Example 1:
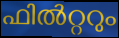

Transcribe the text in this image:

ഫിൽറ്ററും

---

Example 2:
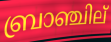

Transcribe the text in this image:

ബ്രാഞ്ചില്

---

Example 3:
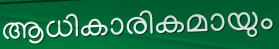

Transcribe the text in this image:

ആധികാരികമായും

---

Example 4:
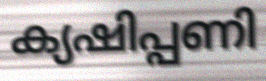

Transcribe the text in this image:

ക്യഷിപ്പണി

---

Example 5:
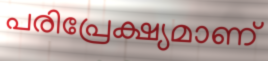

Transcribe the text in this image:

പരിപ്രേക്ഷ്യമാണ്